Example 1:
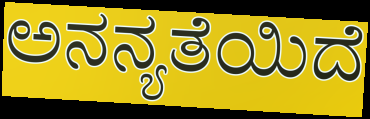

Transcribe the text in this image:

ಅನನ್ಯತೆಯಿದೆ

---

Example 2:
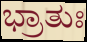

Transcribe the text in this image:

ಭ್ರಾತುಃ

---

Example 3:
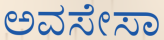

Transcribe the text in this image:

ಅವಸೇಸಾ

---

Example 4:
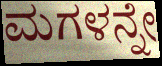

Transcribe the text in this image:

ಮಗಳನ್ನೇ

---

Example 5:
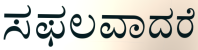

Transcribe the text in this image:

ಸಫಲವಾದರೆ